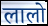
लालो